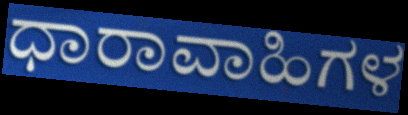
ಧಾರಾವಾಹಿಗಳ